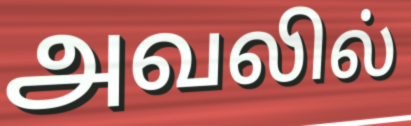
அவலில்